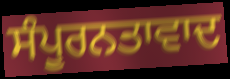
ਸੰਪੂਰਨਤਾਵਾਦ